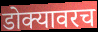
डोक्यावरच